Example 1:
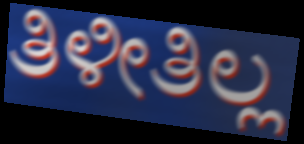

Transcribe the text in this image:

ತಿಳೀತಿಲ್ಲ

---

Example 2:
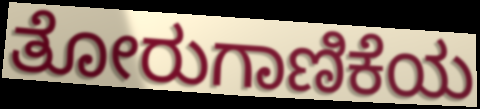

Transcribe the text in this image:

ತೋರುಗಾಣಿಕೆಯ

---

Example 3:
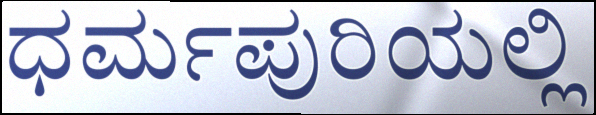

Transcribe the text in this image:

ಧರ್ಮಪುರಿಯಲ್ಲಿ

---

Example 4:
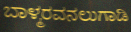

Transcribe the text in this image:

ಬಾಳ್ಮರವನಲುಗಾಡಿ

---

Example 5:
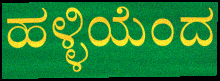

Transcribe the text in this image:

ಹಳ್ಳಿಯೆಂದ